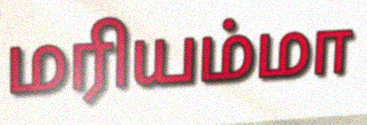
மரியம்மா